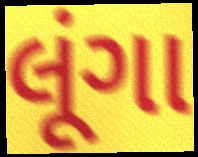
લૂંગા